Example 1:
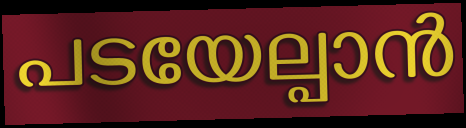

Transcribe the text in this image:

പടയേല്പാൻ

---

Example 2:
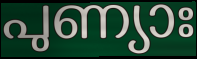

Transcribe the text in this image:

പുണ്യാഃ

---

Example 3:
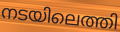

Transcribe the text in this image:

നടയിലെത്തി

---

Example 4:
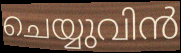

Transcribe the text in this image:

ചെയ്യുവിൻ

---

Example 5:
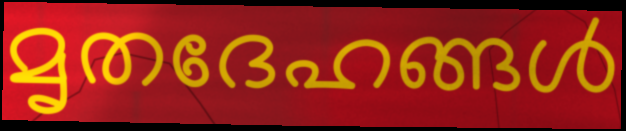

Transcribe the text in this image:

മൃതദേഹങ്ങൾ